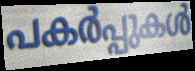
പകർപ്പുകൾ